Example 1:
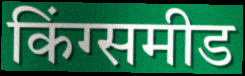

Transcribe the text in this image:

किंग्समीड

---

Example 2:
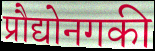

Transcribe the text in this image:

प्रौद्योनगकी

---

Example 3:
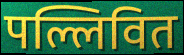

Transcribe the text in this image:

पल्लिवित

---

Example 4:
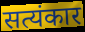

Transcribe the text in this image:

सत्यंकार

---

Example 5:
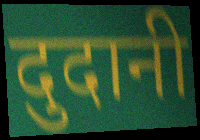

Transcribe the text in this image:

दुदानी